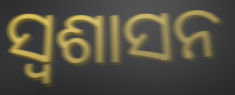
ସ୍ବଶାସନ